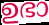
ഉഭാ